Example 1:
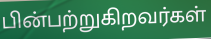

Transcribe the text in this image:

பின்பற்றுகிறவர்கள்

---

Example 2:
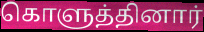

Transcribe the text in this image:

கொளுத்தினார்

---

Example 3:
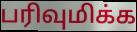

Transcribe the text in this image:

பரிவுமிக்க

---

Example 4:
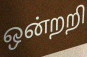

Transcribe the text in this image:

ஒன்றறி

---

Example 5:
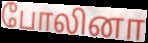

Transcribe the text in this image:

போலினா